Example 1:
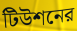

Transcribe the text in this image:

টিউশনের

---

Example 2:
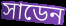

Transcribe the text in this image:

সাডেন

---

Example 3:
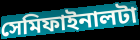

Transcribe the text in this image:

সেমিফাইনালটা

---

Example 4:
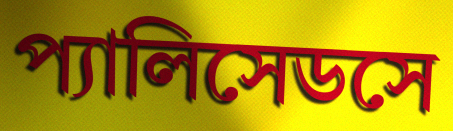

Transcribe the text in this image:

প্যালিসেডসে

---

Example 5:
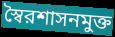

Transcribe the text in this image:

স্বৈরশাসনমুক্ত